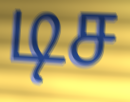
டிச